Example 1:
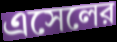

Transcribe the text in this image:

এসেলের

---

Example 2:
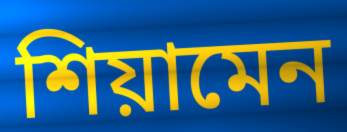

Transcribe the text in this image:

শিয়ামেন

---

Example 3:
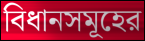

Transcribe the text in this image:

বিধানসমূহের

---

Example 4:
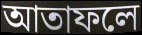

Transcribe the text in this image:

আতাফলে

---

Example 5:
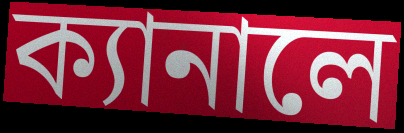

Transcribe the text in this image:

ক্যানালে